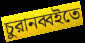
চুরানব্বইতে